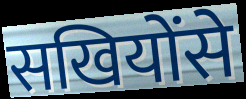
सखियोंसे